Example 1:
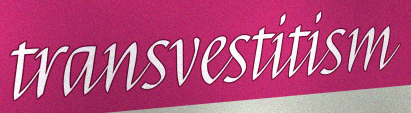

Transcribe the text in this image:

transvestitism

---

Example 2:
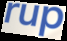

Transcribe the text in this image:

rup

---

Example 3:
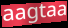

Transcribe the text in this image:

aagtaa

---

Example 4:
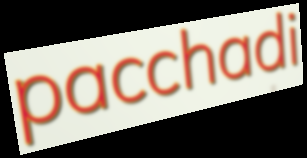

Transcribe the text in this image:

pacchadi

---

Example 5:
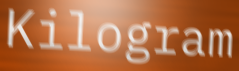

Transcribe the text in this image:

Kilogram